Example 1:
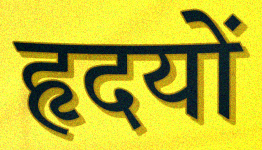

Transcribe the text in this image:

हृदयों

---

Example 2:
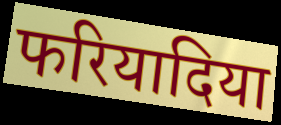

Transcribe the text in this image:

फरियादिया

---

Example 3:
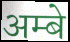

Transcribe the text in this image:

अम्बे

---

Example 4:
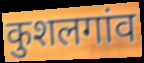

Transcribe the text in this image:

कुशलगांव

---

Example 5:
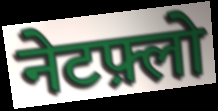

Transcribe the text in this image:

नेटफ़्लो